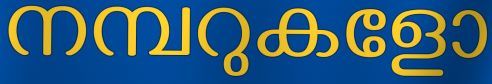
നമ്പറുകളോ